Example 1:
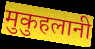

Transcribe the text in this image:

मुकुहलानी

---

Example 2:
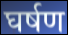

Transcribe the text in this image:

घर्षण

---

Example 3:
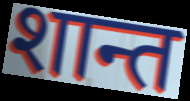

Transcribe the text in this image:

शान्त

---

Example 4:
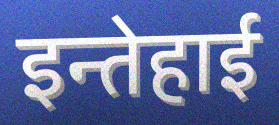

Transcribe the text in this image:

इन्तेहाई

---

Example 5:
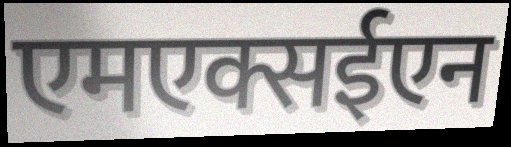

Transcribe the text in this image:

एमएक्सईएन